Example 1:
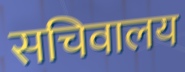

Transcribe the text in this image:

सचिवालय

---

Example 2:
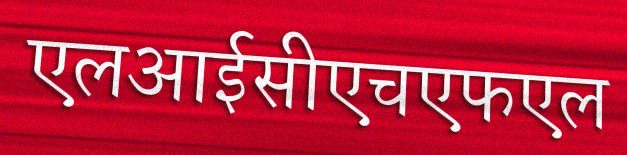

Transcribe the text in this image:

एलआईसीएचएफएल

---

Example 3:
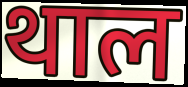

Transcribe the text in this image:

थाल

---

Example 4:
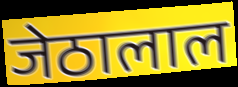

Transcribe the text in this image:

जेठालाल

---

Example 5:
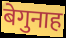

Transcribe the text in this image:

बेगुनाह